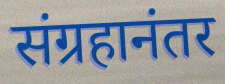
संग्रहानंतर